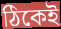
ঠিকেই